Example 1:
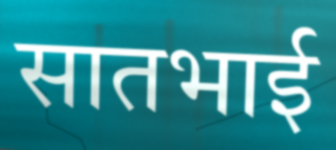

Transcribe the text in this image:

सातभाई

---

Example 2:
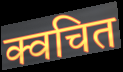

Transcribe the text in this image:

क्वचित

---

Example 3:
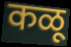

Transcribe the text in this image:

कळू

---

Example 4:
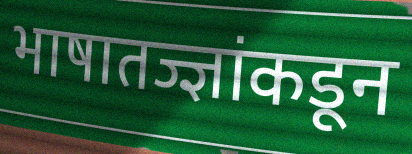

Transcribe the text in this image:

भाषातज्ज्ञांकडून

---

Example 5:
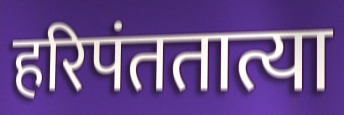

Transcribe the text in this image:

हरिपंततात्या